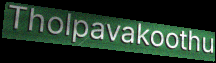
Tholpavakoothu